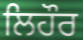
ਲਿਹੌਰ